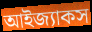
আইজ্যাকস